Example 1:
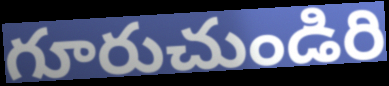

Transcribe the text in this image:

గూరుచుండిరి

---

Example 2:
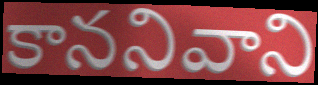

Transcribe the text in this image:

కాననివాని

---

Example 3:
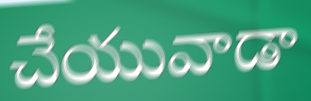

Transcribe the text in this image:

చేయువాడా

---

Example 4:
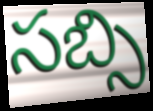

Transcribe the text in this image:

సబ్సి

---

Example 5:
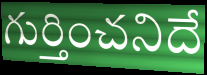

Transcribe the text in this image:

గుర్తించనిదే